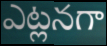
ఎట్లనగా